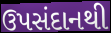
ઉપસંદાનથી